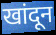
खांदून